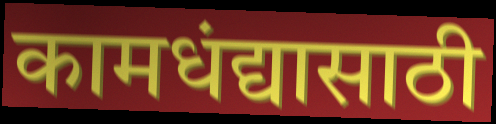
कामधंद्यासाठी